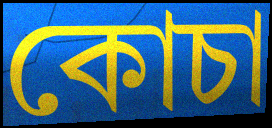
কোচা